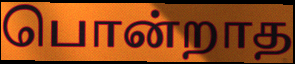
பொன்றாத